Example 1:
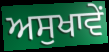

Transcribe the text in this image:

ਅਸੁਖਾਵੇਂ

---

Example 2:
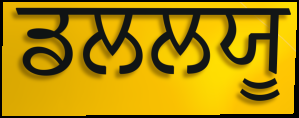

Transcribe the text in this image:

ਡਲਲਯੂ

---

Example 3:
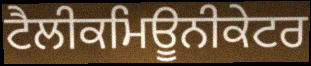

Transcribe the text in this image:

ਟੈਲੀਕਮਿਊਨੀਕੇਟਰ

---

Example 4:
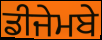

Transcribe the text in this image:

ਡੀਜੇਮਬੇ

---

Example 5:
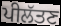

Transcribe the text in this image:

ਪੀਲੱਤਣ